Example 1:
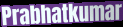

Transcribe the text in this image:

Prabhatkumar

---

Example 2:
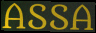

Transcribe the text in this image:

ASSA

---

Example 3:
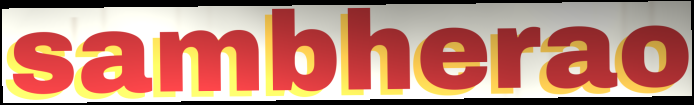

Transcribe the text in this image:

sambherao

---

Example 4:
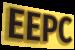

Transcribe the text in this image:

EEPC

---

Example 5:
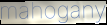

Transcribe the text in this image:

mahogany